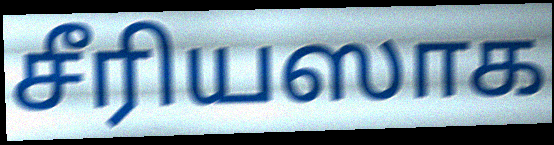
சீரியஸாக